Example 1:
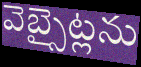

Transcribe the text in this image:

వెబ్సైట్లను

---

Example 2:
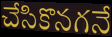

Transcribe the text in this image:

చేసికొనగనే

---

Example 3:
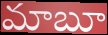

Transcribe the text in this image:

మాబూ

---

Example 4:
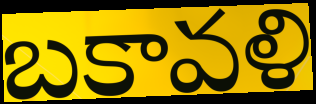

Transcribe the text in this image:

బకావళి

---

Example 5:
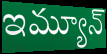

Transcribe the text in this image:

ఇమ్యూన్